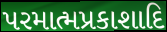
પરમાત્મપ્રકાશાદિ